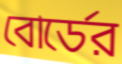
বোর্ডের